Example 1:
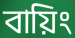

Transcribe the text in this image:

বায়িং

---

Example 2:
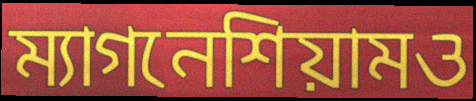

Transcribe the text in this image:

ম্যাগনেশিয়ামও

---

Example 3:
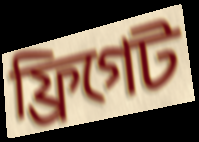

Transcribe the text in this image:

ফ্রিগেট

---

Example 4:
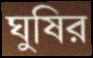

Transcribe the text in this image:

ঘুষির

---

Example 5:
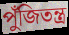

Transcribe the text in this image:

পুঁজিতন্ত্র